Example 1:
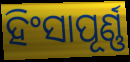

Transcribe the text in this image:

ହିଂସାପୂର୍ଣ୍ଣ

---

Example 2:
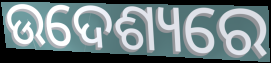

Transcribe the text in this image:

ଉଦେଶ୍ୟରେ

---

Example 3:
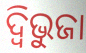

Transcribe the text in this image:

ଦ୍ବିଭୁଜା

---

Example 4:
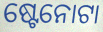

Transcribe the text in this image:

ଷ୍ଟେନୋଟା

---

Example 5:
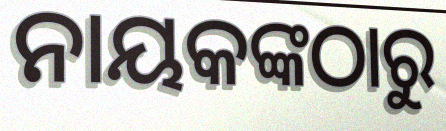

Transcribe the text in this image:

ନାୟକଙ୍କଠାରୁ